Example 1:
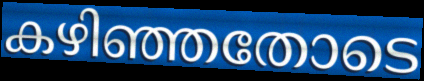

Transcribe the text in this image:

കഴിഞ്ഞതോടെ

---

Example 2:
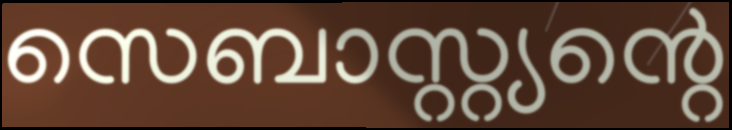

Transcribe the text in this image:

സെബാസ്റ്റ്യന്റെ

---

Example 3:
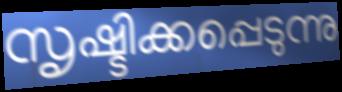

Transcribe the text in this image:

സൃഷ്ടിക്കപ്പെടുന്നു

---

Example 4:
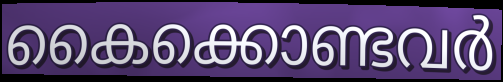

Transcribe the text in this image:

കൈക്കൊണ്ടവർ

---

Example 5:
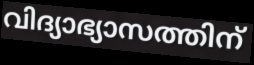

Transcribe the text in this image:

വിദ്യാഭ്യാസത്തിന്